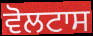
ਵੋਲਟਾਸ